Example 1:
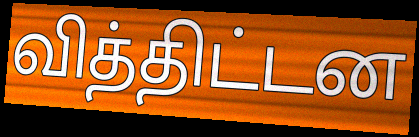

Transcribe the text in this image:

வித்திட்டன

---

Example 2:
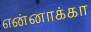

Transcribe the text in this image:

என்னாக்கா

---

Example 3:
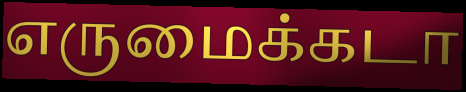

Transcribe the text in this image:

எருமைக்கடா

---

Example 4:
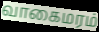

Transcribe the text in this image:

வாகைமரம்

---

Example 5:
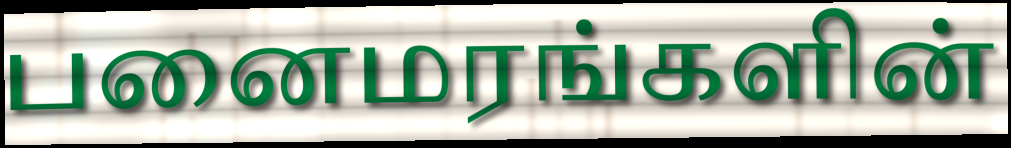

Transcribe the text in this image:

பனைமரங்களின்